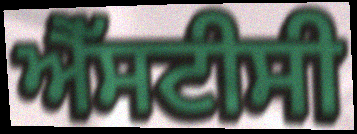
ਐੱਸਟੀਸੀ